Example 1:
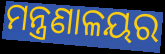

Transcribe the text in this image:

ମନ୍ତ୍ରଣାଳୟର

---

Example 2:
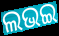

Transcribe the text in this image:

ଲଭଇ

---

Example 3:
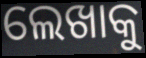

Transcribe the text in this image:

ଲେଖାକୁ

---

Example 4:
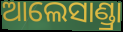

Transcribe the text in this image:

ଆଲେସାଣ୍ଡ୍ରା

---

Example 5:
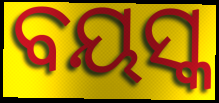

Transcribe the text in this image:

ବୟସ୍କ